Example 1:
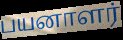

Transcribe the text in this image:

பயனாளர்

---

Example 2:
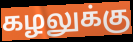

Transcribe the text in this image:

கழலுக்கு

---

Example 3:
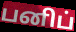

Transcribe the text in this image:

பனிப்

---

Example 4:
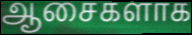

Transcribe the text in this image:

ஆசைகளாக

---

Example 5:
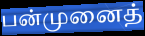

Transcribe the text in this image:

பன்முனைத்